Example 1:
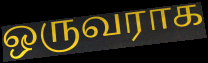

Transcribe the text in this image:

ஒருவராக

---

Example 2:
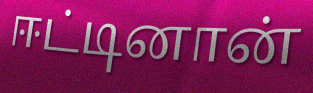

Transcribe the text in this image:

ஈட்டினான்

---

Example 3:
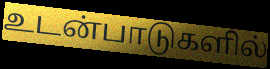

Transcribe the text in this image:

உடன்பாடுகளில்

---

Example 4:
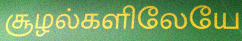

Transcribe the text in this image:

சூழல்களிலேயே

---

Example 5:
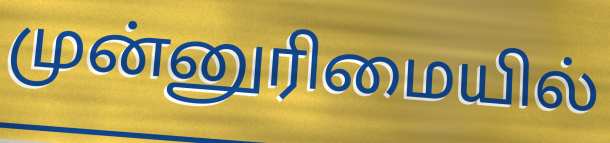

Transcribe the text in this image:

முன்னுரிமையில்